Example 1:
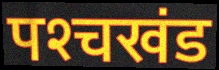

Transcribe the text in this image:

पश्चखंड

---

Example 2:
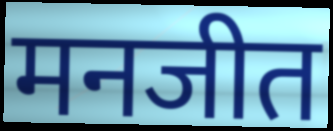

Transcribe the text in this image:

मनजीत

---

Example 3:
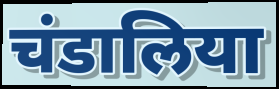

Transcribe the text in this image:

चंडालिया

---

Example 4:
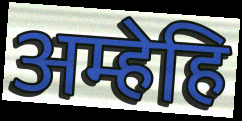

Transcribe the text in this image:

अम्हेहि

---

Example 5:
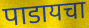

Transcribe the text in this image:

पाडायचा